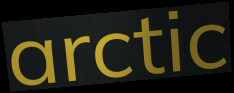
arctic